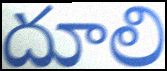
దూలి